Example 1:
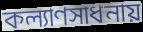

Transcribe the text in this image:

কল্যাণসাধনায়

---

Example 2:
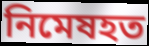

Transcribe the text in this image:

নিমেষহত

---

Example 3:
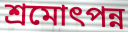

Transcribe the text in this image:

শ্রমোৎপন্ন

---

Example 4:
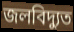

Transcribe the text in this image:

জলবিদ্যুত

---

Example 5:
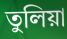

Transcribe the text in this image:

তুলিয়া